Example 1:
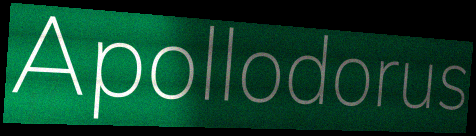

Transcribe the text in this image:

Apollodorus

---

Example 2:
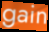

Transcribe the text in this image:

gain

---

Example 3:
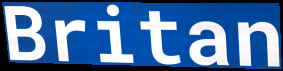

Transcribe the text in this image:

Britan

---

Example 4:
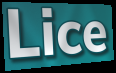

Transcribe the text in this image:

Lice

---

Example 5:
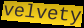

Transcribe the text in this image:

velvety